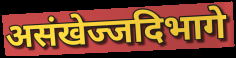
असंखेज्जदिभागे